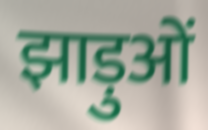
झाड़ुओं